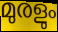
മുരളും